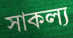
সাকল্য